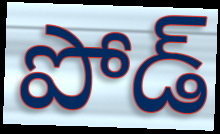
పోడ్